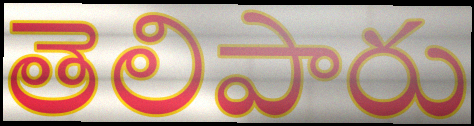
తెలిపారు